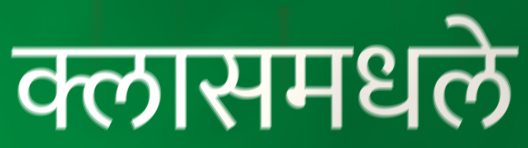
क्लासमधले